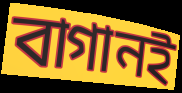
বাগানই